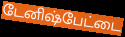
டேனிஷ்பேட்டை